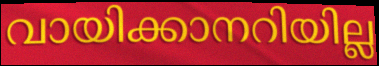
വായിക്കാനറിയില്ല